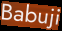
Babuji